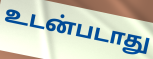
உடன்படாது